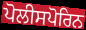
ਪੋਲੀਸਪੋਰਿਨ